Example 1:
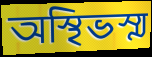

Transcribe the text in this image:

অস্থিভস্ম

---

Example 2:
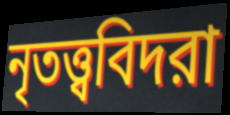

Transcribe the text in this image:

নৃতত্ত্ববিদরা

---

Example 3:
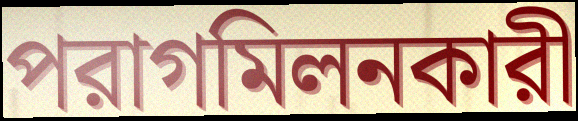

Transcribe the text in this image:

পরাগমিলনকারী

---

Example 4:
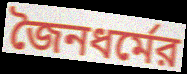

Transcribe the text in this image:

জৈনধর্মের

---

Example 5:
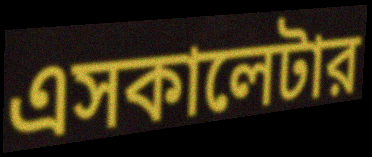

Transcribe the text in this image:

এসকালেটার